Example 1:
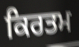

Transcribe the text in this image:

ਕਿਰਤਮ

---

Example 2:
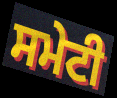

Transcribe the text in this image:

ਸਮੇਟੀ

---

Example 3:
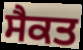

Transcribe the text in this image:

ਸੈਕਤ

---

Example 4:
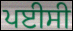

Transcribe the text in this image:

ਪਈਸੀ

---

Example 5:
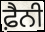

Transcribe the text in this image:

ਫ਼ੈਨੀ